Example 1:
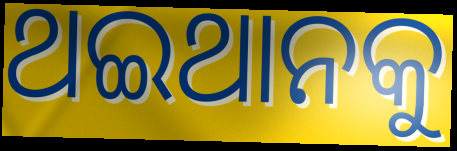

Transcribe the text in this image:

ଥଇଥାନକୁ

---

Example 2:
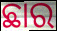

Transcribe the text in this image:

ଛାର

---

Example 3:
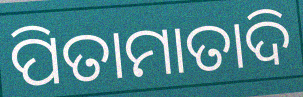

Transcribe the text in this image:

ପିତାମାତାଦି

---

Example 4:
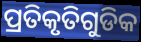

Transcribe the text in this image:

ପ୍ରତିକୃତିଗୁଡିକ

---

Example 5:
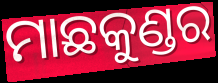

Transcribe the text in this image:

ମାଛକୁଣ୍ଡର